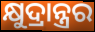
କ୍ଷୁଦ୍ରାନ୍ତ୍ରର